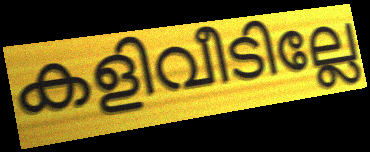
കളിവീടില്ലേ